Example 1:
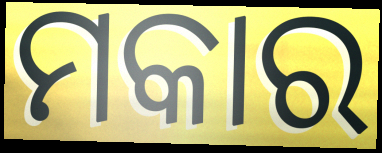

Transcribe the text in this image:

ମକାର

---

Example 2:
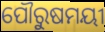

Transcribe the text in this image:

ପୌରୁଷମୟୀ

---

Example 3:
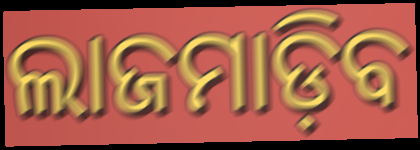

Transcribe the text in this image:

ଲାଜମାଡ଼ିବ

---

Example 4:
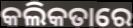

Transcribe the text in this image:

କଲିକତାରେ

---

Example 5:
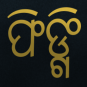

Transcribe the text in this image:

ଫିଙ୍ଗି